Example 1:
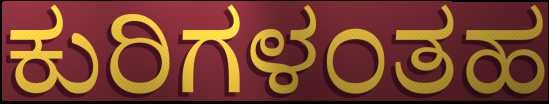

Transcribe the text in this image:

ಕುರಿಗಳಂತಹ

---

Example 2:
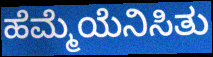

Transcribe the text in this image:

ಹೆಮ್ಮೆಯೆನಿಸಿತು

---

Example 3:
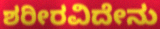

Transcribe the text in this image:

ಶರೀರವಿದೇನು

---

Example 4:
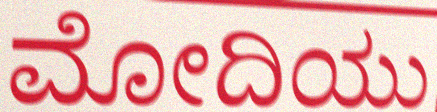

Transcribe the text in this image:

ಮೋದಿಯು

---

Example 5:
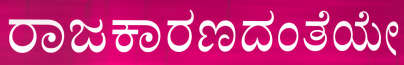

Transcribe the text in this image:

ರಾಜಕಾರಣದಂತೆಯೇ